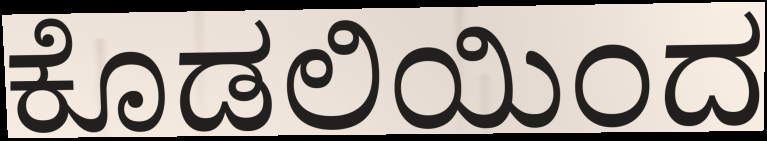
ಕೊಡಲಿಯಿಂದ